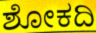
ಶೋಕದಿ